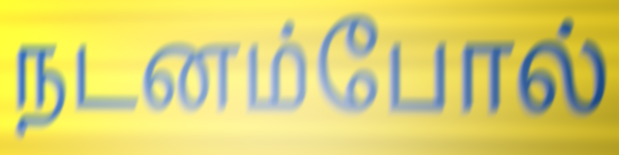
நடனம்போல்